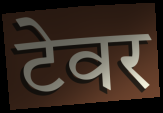
टेवर